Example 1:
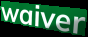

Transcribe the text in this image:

waiver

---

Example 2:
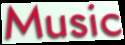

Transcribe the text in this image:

Music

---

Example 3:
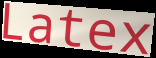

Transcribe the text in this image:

Latex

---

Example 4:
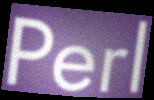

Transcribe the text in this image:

Perl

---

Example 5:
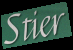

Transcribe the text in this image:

Stier